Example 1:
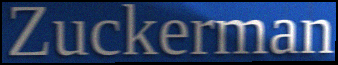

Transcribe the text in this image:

Zuckerman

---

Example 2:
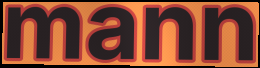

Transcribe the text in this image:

mann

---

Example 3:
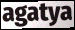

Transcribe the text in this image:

agatya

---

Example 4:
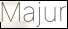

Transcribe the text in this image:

Majur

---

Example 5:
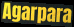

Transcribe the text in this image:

Agarpara